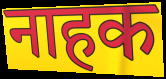
नाहक